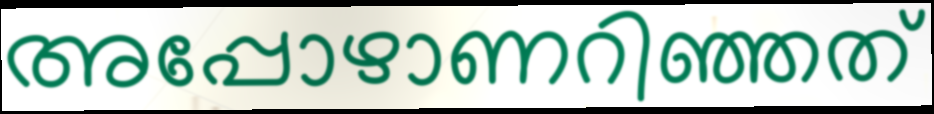
അപ്പോഴാണറിഞ്ഞത്